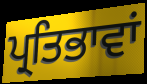
ਪ੍ਰਤਿਭਾਵਾਂ